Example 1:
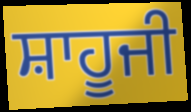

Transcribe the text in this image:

ਸ਼ਾਹੂਜੀ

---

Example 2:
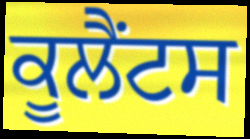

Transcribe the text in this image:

ਕੂਲੈਂਟਸ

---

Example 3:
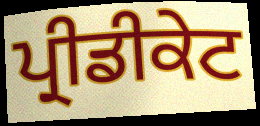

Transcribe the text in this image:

ਪ੍ਰੀਡੀਕੇਟ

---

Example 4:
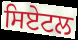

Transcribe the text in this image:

ਸਿਏਟਲ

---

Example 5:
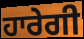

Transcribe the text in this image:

ਹਾਰੇਗੀ